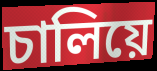
চালিয়ে